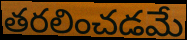
తరలించడమే